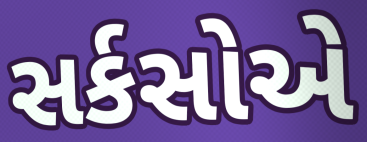
સર્કસોએ